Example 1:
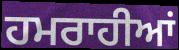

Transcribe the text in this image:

ਹਮਰਾਹੀਆਂ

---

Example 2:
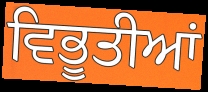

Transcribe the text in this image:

ਵਿਭੂਤੀਆਂ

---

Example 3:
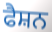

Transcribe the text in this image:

ਫੈਸ਼ਨ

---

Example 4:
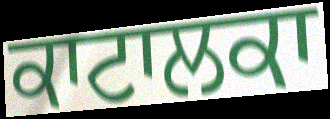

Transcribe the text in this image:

ਕਾਟਾਲਕਾ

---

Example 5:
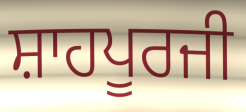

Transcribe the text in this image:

ਸ਼ਾਹਪੂਰਜੀ